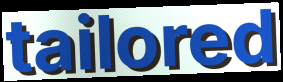
tailored